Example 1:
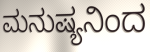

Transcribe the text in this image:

ಮನುಷ್ಯನಿಂದ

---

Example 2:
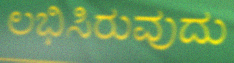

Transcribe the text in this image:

ಲಭಿಸಿರುವುದು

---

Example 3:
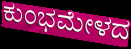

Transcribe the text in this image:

ಕುಂಭಮೇಳದ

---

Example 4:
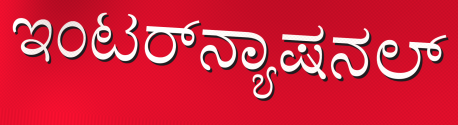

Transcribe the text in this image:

ಇಂಟರ್‌ನ್ಯಾಷನಲ್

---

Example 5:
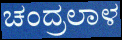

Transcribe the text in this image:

ಚಂದ್ರಲಾಳ